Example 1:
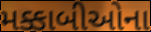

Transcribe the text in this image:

મક્કાબીઓના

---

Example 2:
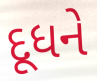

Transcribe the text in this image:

દૂધને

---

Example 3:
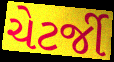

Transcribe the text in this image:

ચેટર્જી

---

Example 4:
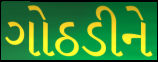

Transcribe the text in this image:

ગોઠડીને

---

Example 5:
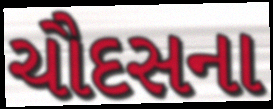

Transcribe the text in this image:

ચૌદસના